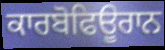
ਕਾਰਬੋਫਿਊਰਾਨ